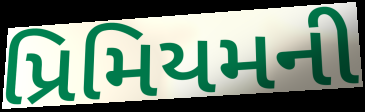
પ્રિમિયમની